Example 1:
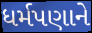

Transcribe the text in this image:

ધર્મપણાને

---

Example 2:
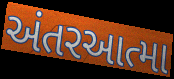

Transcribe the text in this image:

અંતરઆત્મા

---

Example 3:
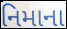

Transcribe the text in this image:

નિમાના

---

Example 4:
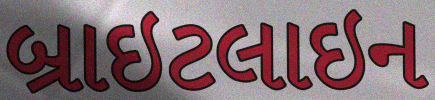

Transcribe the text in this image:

બ્રાઇટલાઇન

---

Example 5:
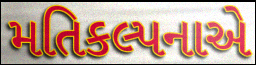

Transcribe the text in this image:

મતિકલ્પનાએ